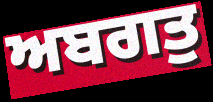
ਅਬਗਤੁ